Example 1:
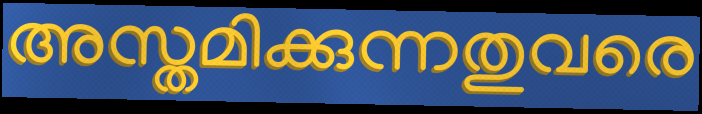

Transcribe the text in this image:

അസ്തമിക്കുന്നതുവരെ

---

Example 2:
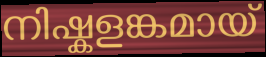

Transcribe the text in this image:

നിഷ്കളങ്കമായ്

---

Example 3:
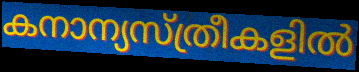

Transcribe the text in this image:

കനാന്യസ്ത്രീകളിൽ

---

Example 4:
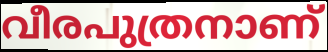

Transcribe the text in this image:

വീരപുത്രനാണ്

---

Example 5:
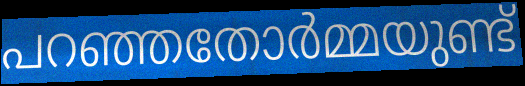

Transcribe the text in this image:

പറഞ്ഞതോർമ്മയുണ്ട്